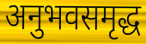
अनुभवसमृद्ध